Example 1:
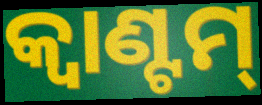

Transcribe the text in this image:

କ୍ଵାଣ୍ଟମ୍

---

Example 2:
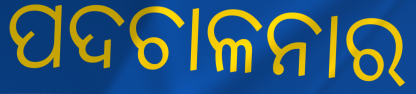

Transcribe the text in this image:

ପଦଚାଳନାର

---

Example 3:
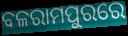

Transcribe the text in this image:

ବଳରାମପୁରରେ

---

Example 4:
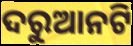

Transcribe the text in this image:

ଦରୁଆନଟି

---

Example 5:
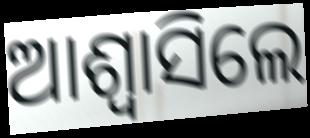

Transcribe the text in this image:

ଆଶ୍ୱାସିଲେ